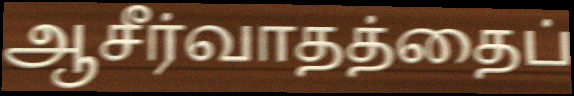
ஆசீர்வாதத்தைப்